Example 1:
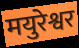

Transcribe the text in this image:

मयुरेश्वर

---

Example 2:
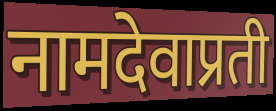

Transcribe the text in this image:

नामदेवाप्रती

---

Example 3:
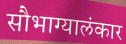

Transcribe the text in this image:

सौभाग्यालंकार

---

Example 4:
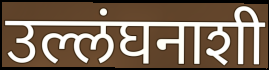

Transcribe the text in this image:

उल्लंघनाशी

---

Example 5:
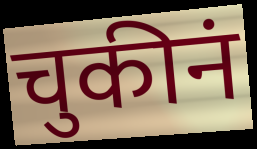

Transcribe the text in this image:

चुकीनं